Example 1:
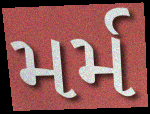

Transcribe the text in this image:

મર્મ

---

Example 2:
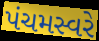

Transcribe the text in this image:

પંચમસ્વરે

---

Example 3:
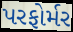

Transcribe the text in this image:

પરફોર્મર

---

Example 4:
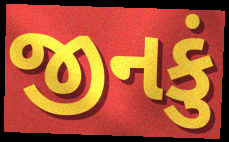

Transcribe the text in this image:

જીનકું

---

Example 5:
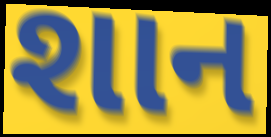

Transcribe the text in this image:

શાન